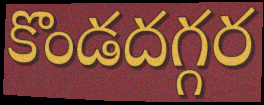
కొండదగ్గర